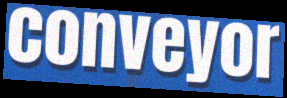
conveyor